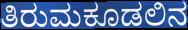
ತಿರುಮಕೂಡಲಿನ